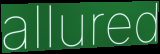
allured